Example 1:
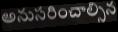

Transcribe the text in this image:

అనుసరించాల్సిన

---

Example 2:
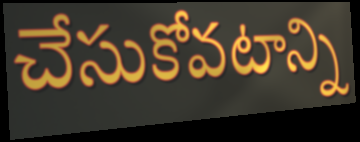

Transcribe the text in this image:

చేసుకోవటాన్ని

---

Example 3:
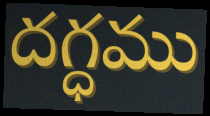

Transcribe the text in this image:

దగ్ధము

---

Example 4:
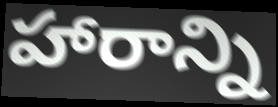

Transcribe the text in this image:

హారాన్ని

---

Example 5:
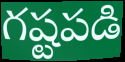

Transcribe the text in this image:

గష్టపడి